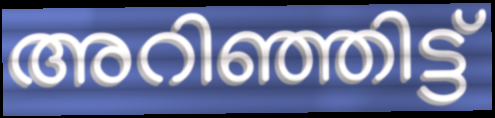
അറിഞ്ഞിട്ട്